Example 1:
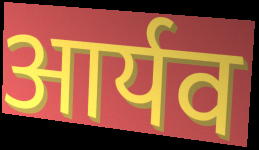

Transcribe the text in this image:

आर्यव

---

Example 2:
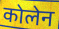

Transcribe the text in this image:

कोलेन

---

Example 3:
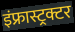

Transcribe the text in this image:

इंफ्रास्ट्रक्टर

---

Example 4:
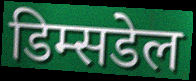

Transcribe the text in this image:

डिम्सडेल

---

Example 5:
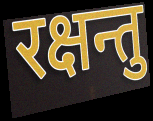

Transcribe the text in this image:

रक्षन्तु